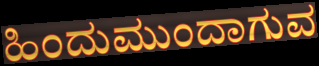
ಹಿಂದುಮುಂದಾಗುವ